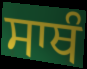
ਸਾਥੰ